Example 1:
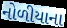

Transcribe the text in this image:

નોળીયાના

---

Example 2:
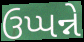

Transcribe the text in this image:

ઉપ્પન્ને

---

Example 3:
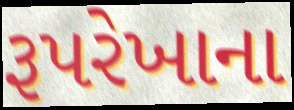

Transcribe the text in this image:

રૂપરેખાના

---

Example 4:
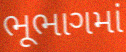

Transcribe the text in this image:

ભૂભાગમાં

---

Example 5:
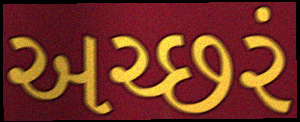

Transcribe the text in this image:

અચ્છરં